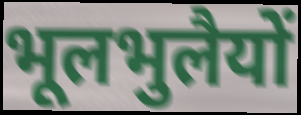
भूलभुलैयों